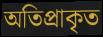
অতিপ্ৰাকৃত